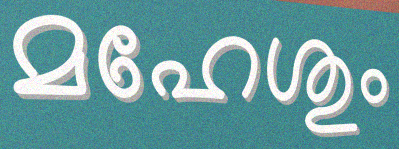
മഹേശും